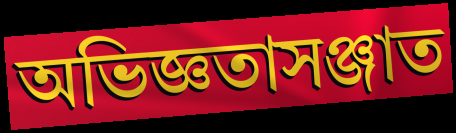
অভিজ্ঞতাসঞ্জাত